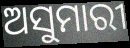
ଅସୁମାରୀ